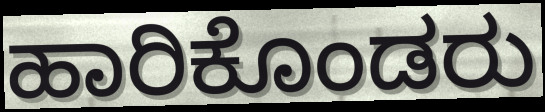
ಹಾರಿಕೊಂಡರು